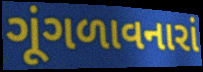
ગૂંગળાવનારાં